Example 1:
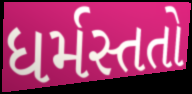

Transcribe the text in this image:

ધર્મસ્તતો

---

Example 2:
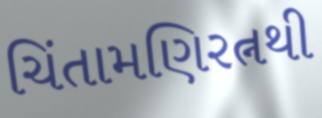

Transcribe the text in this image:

ચિંતામણિરત્નથી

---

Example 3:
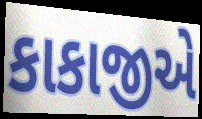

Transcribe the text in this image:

કાકાજીએ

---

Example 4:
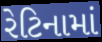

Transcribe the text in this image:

રેટિનામાં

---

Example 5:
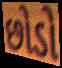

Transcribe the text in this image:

છોડો